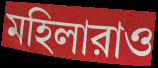
মহিলারাও